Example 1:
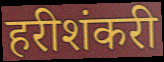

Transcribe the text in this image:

हरीशंकरी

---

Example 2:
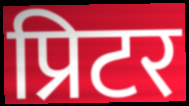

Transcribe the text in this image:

प्रिटर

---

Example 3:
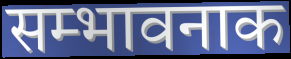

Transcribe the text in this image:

सम्भावनाक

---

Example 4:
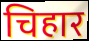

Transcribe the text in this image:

चिहार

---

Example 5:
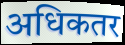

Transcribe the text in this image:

अधिकतर